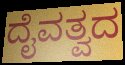
ದೈವತ್ವದ